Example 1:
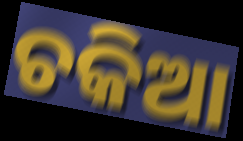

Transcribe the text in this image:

ଚକିଆ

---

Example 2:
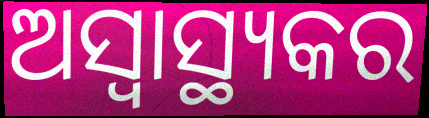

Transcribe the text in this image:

ଅସ୍ବାସ୍ଥ୍ୟକର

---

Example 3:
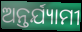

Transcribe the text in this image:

ଅନ୍ତର୍ଯ୍ୟାମୀ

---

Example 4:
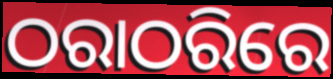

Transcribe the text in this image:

ଠରାଠରିରେ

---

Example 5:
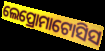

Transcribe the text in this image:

ଲେପ୍ରୋମାଟୋସିସ